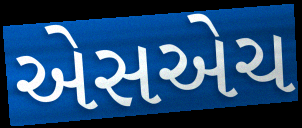
એસએચ